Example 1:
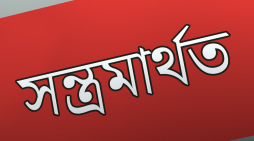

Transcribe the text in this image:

সন্ত্ৰমাৰ্থত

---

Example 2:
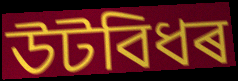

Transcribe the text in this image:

উটবিধৰ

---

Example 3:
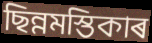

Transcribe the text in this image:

ছিন্নমস্তিকাৰ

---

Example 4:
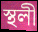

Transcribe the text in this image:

স্থলী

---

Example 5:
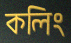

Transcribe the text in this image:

কলিং